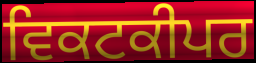
ਵਿਕਟਕੀਪਰ